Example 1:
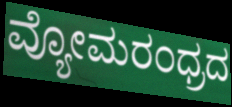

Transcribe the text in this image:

ವ್ಯೋಮರಂಧ್ರದ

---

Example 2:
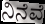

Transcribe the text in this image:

ನಿನೆವೆ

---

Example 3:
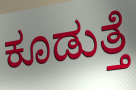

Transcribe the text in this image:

ಕೂಡುತ್ತೆ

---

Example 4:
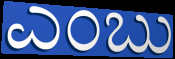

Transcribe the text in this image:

ಎಂಬು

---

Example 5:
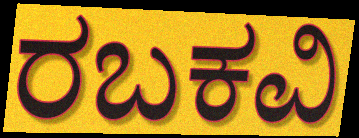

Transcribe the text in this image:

ರಬಕವಿ